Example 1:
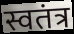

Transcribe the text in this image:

स्वतंत्र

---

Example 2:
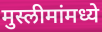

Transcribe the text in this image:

मुस्लीमांमध्ये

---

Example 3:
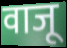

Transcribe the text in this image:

वाजू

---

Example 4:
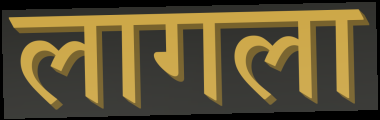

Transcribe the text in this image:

लागला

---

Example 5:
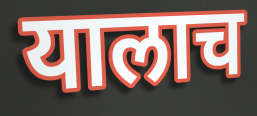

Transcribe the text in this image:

यालाच